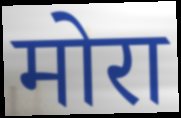
मोरा